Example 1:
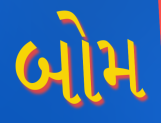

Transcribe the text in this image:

બોમ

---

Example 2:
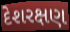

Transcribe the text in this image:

દેશરક્ષણ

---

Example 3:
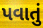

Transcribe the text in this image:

પવાતું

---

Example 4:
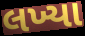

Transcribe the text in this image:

લખ્યા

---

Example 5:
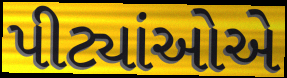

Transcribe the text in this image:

પીટ્યાંઓએ